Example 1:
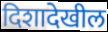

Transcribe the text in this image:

दिशादेखील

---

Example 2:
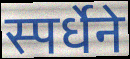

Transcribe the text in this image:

स्पर्धेने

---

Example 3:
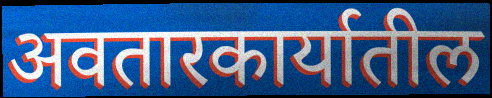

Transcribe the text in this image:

अवतारकार्यातील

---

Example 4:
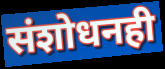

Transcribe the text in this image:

संशोधनही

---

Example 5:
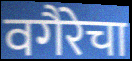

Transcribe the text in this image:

वगैरेचा